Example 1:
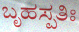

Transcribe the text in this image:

ಬೃಹಸ್ಪತಿಃ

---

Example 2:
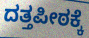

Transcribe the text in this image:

ದತ್ತಪೀಠಕ್ಕೆ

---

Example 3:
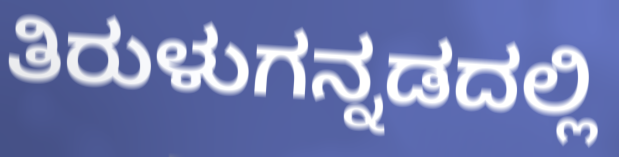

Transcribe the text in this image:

ತಿರುಳುಗನ್ನಡದಲ್ಲಿ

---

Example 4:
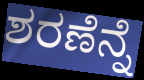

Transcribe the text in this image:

ಶರಣೆನ್ನೆ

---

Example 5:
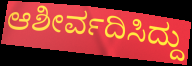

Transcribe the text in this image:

ಆಶೀರ್ವದಿಸಿದ್ದು